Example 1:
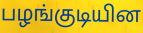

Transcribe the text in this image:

பழங்குடியின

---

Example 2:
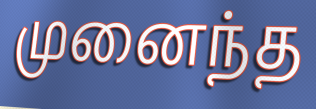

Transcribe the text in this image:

முனைந்த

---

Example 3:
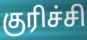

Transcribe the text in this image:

குரிச்சி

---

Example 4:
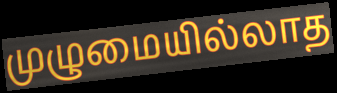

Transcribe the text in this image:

முழுமையில்லாத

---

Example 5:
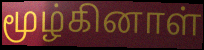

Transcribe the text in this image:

மூழ்கினாள்